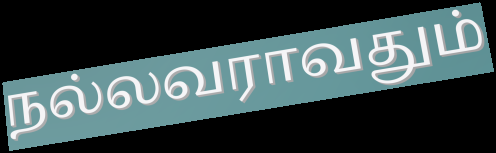
நல்லவராவதும்